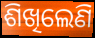
ଶିଖିଲେଣି